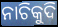
ନାଚିକୁଦି